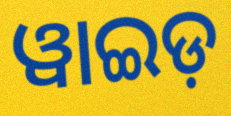
ୱାଇଡ଼